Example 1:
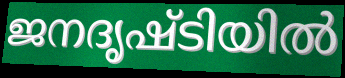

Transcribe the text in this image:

ജനദൃഷ്ടിയിൽ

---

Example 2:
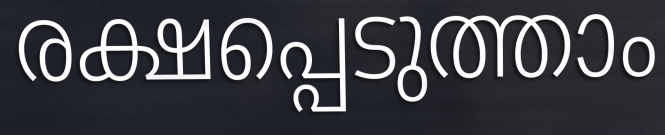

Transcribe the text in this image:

രക്ഷപ്പെടുത്താം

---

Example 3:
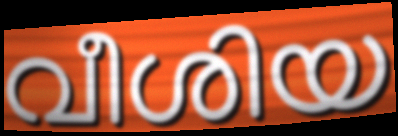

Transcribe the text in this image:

വീശിയ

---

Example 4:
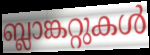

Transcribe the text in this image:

ബ്ലാങ്കറ്റുകൾ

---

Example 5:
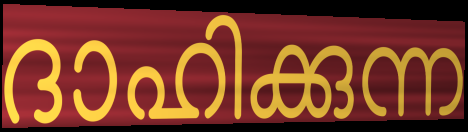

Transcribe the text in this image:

ദാഹിക്കുന്ന